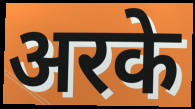
अरके